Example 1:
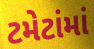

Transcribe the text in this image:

ટમેટાંમાં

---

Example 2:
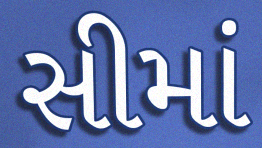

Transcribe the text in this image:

સીમાં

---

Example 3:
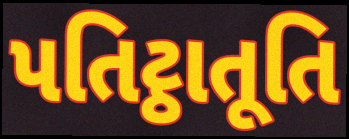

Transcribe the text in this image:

પતિટ્ઠાતૂતિ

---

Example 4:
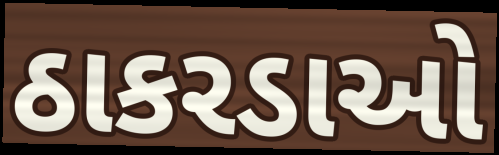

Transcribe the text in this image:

ઠાકરડાઓ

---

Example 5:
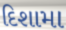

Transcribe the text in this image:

દિશામા